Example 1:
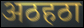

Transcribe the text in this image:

अठहठा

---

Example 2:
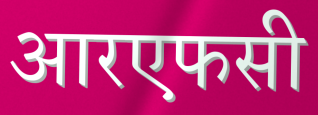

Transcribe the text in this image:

आरएफसी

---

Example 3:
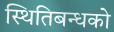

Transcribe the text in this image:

स्थितिबन्धको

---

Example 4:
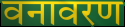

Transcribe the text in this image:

वनावरण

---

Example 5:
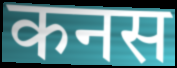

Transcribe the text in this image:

कनस